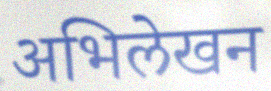
अभिलेखन